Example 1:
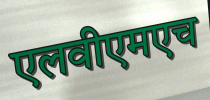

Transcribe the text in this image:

एलवीएमएच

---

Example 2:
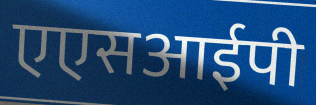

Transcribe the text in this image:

एएसआईपी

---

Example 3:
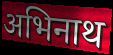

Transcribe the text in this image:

अभिनाथ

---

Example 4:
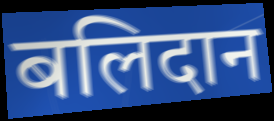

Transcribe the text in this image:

बलिदान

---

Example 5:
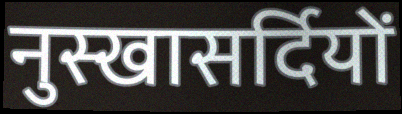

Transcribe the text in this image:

नुस्खासर्दियों